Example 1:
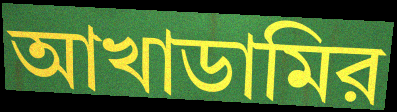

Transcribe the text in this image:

আখাডামির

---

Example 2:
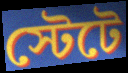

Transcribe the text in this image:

স্টেটে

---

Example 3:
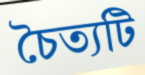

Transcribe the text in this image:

চৈত্যটি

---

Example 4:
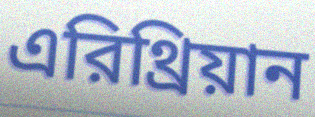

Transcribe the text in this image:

এরিথ্রিয়ান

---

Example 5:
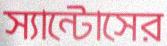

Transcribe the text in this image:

স্যান্টোসের